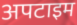
अपटाइम